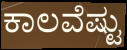
ಕಾಲವೆಷ್ಟು